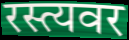
रस्त्यवर